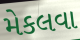
મેકલવા